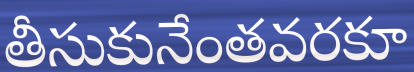
తీసుకునేంతవరకూ